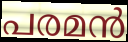
പരമൻ